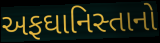
અફઘાનિસ્તાનો